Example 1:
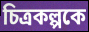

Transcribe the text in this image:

চিত্রকল্পকে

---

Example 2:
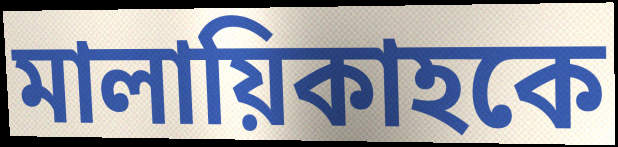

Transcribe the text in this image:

মালায়িকাহকে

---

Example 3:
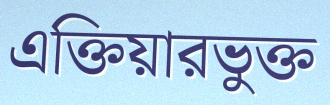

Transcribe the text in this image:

এক্তিয়ারভুক্ত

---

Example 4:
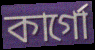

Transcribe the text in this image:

কার্গো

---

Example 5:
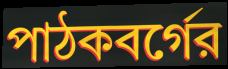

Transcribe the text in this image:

পাঠকবর্গের